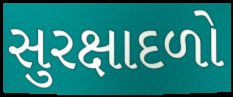
સુરક્ષાદળો